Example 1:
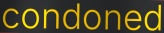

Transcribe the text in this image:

condoned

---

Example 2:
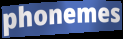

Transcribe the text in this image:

phonemes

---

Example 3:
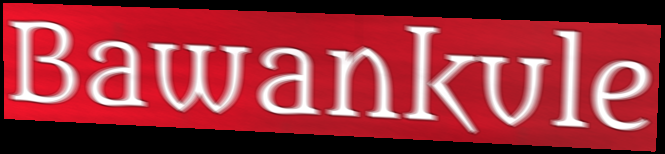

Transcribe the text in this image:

Bawankule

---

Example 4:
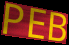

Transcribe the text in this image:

PEB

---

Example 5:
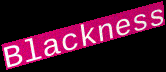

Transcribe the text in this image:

Blackness